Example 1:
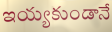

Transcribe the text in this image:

ఇయ్యకుండానే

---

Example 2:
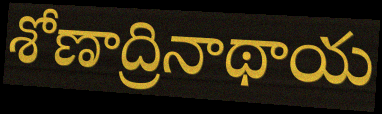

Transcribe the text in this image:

శోణాద్రినాథాయ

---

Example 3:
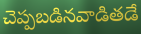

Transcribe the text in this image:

చెప్పబడినవాడితడే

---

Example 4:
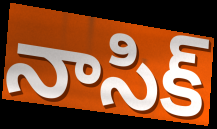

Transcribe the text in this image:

నాసిక్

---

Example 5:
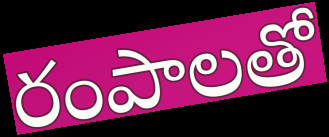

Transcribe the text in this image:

రంపాలతో